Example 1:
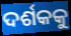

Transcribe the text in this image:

ଦର୍ଶକକୁ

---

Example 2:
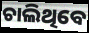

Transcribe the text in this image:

ଚାଲିଥିବେ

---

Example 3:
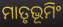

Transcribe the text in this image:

ମାତୃଭୂମିଂ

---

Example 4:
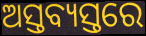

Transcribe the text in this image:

ଅସ୍ତବ୍ୟସ୍ତରେ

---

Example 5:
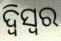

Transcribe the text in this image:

ଦ୍ଵିସ୍ଵର